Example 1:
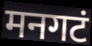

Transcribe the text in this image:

मनगटं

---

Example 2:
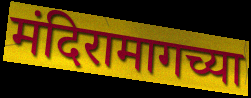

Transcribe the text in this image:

मंदिरामागच्या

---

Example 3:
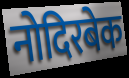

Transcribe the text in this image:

नोदिरबेक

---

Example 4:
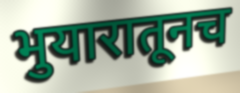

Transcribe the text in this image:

भुयारातूनच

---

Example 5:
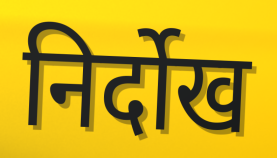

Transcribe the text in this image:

निर्दोख